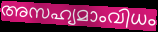
അസഹ്യമാംവിധം